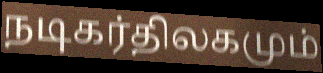
நடிகர்திலகமும்